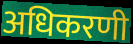
अधिकरणी